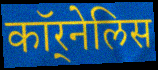
कॉर्नेलिस